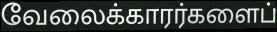
வேலைக்காரர்களைப்